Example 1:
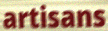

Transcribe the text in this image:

artisans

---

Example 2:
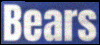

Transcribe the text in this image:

Bears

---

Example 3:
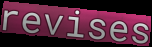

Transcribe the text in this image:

revises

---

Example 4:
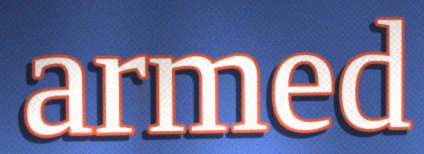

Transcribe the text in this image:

armed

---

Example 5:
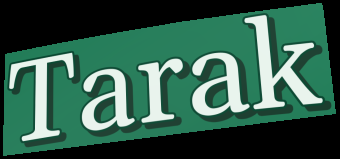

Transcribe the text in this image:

Tarak